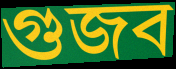
গুজব